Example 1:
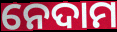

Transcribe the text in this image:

ନେଦାମ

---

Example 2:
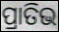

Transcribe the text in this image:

ପ୍ରାତିଭ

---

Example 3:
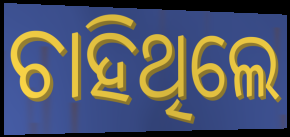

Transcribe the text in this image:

ଚାହିଥିଲେ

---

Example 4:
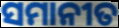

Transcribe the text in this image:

ସମାନୀତ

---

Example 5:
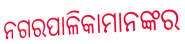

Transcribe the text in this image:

ନଗରପାଳିକାମାନଙ୍କର